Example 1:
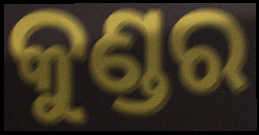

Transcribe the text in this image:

କୁଣ୍ଡର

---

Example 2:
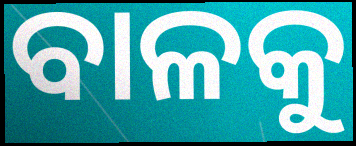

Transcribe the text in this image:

ବାଳକୁ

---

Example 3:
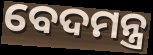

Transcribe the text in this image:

ବେଦମନ୍ତ୍ର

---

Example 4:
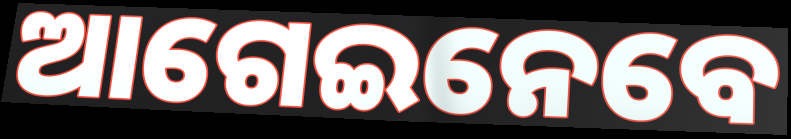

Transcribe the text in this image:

ଆଗେଇନେବେ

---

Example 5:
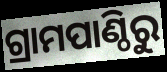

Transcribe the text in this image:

ଗ୍ରାମପାଣ୍ଠିରୁ